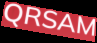
QRSAM